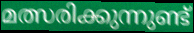
മത്സരിക്കുന്നുണ്ട്